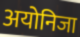
अयोनिजा